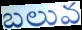
బలువ